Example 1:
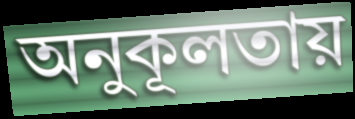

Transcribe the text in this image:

অনুকূলতায়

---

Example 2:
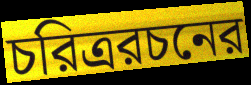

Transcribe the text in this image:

চরিত্ররচনের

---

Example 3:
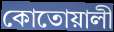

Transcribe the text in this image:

কোতোয়ালী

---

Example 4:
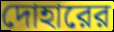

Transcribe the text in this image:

দোহারের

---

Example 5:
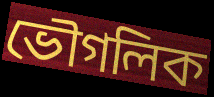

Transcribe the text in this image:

ভৌগলিক